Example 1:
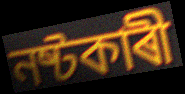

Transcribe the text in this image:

নষ্টকাৰী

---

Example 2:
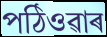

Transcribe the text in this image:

পঠিওৱাৰ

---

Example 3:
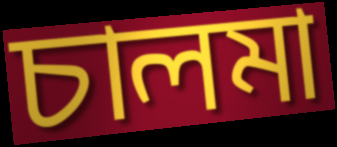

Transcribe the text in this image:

চালমা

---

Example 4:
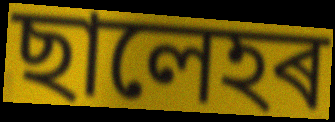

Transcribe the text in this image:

ছালেহৰ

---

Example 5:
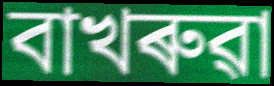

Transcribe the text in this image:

বাখৰুৱা